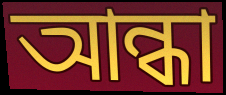
আন্ধা